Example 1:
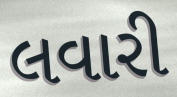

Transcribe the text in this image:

લવારી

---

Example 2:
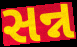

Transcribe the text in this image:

સન્ન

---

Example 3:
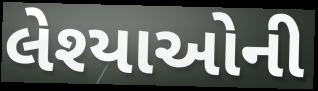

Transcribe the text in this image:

લેશ્યાઓની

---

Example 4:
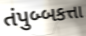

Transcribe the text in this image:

તંપુબ્બકત્તા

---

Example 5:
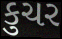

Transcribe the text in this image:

કુચર